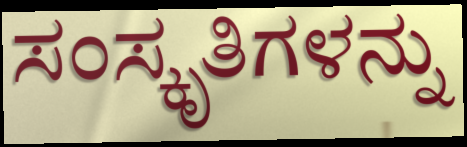
ಸಂಸ್ಕೃತಿಗಳನ್ನು